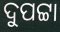
ଦୁପଟ୍ଟା